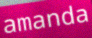
amanda